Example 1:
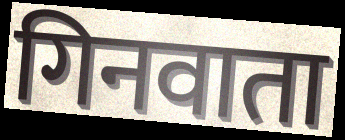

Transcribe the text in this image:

गिनवाता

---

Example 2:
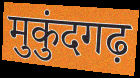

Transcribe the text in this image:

मुकुंदगढ़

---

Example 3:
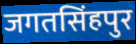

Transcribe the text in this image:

जगतसिंहपुर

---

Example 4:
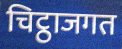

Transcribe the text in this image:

चिट्ठाजगत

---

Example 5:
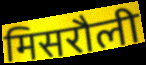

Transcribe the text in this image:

मिसरौली